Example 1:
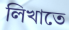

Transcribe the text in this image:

লিখাতে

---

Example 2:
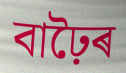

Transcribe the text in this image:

বাঢ়ৈৰ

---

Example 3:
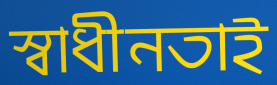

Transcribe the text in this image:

স্বাধীনতাই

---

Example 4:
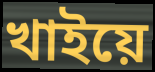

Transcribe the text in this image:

খাইয়ে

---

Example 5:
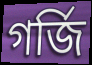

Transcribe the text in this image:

গৰ্জি